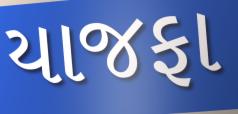
યાજફા